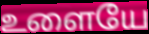
உளையே